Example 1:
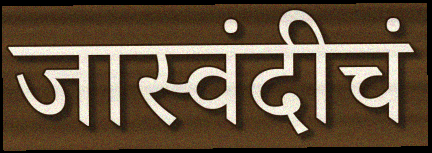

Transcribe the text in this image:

जास्वंदीचं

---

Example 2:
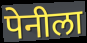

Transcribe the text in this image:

पेनीला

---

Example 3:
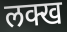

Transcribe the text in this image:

लक्ख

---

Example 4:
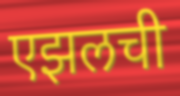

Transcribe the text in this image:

एझलची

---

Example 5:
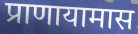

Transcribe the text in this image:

प्राणायामास